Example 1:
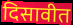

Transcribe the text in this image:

दिसावीत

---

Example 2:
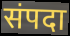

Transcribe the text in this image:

संपदा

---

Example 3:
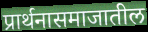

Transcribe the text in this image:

प्रार्थनासमाजातील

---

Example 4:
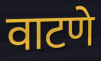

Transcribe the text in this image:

वाटणे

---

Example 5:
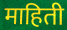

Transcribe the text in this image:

माहिती